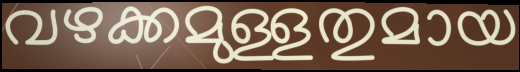
വഴക്കമുള്ളതുമായ